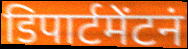
डिपार्टमेंटनं